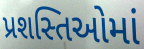
પ્રશસ્તિઓમાં